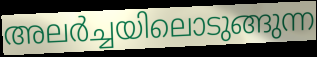
അലർച്ചയിലൊടുങ്ങുന്ന